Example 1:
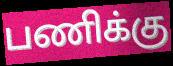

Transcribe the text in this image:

பணிக்கு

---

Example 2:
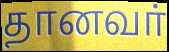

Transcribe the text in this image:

தானவர்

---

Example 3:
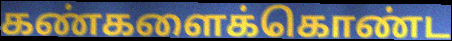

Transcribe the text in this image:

கண்களைக்கொண்ட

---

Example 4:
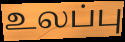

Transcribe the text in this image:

உலப்பு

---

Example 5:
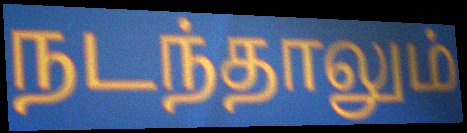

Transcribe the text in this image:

நடந்தாலும்